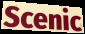
Scenic